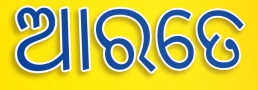
ଆରତେ